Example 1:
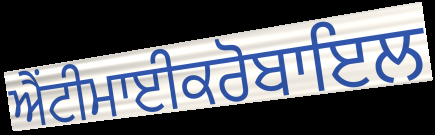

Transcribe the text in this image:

ਐਂਟੀਮਾਈਕਰੋਬਾਇਲ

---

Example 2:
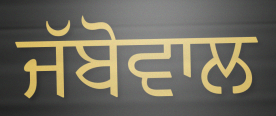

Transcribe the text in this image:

ਜੱਬੋਵਾਲ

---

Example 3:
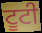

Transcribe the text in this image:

ਟੂਟੀ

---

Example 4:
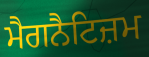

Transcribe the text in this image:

ਮੈਗਨੈਟਿਜ਼ਮ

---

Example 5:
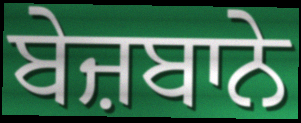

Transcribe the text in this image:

ਬੇਜ਼ਬਾਨੇ